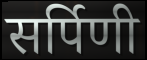
सर्पिणी